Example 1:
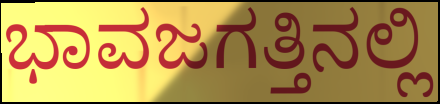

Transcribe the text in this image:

ಭಾವಜಗತ್ತಿನಲ್ಲಿ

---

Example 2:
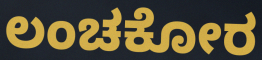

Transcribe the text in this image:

ಲಂಚಕೋರ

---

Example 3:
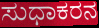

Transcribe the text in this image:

ಸುಧಾಕರನ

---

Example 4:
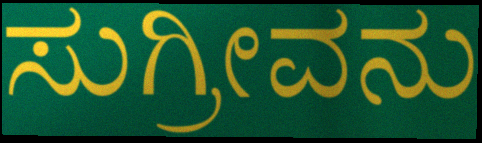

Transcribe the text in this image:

ಸುಗ್ರೀವನು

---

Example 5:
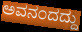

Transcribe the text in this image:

ಅವನಂದದ್ದು